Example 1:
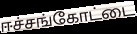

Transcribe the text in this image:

ஈச்சங்கோட்டை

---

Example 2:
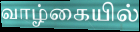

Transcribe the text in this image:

வாழ்கையில்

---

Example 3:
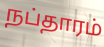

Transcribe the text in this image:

நப்தாரம்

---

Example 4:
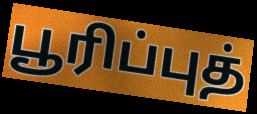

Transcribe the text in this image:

பூரிப்புத்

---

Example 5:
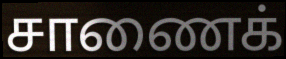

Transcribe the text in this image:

சாணைக்